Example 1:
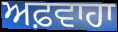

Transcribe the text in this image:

ਅਫ਼ਵਾਹਾ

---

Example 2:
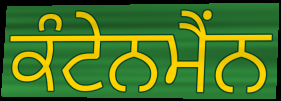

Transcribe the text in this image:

ਕੰਟੇਨਮੈਂਨ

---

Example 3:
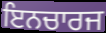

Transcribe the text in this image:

ਇਨਚਾਰਜ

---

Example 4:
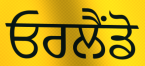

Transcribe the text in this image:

ਓਰਲੈਂਡੋ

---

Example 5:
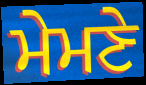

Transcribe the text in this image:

ਮੇਮਣੇ